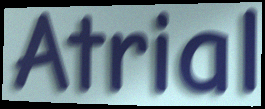
Atrial